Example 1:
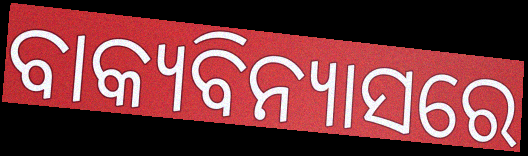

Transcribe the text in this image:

ବାକ୍ୟବିନ୍ୟାସରେ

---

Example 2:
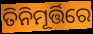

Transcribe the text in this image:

ତିନିମୂର୍ତ୍ତିରେ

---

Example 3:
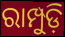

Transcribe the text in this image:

ରାମ୍ପୁଡ଼ି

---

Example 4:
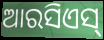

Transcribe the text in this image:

ଆରସିଏସ୍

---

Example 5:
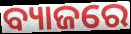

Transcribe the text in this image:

ବ୍ୟାଜରେ